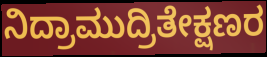
ನಿದ್ರಾಮುದ್ರಿತೇಕ್ಷಣರ